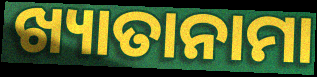
ଖ୍ୟାତାନାମା